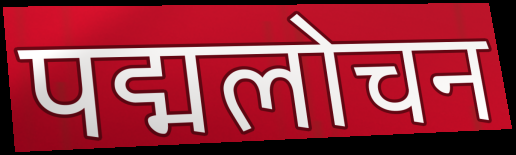
पद्मलोचन